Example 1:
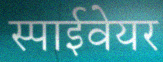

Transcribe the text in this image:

स्पाईवेयर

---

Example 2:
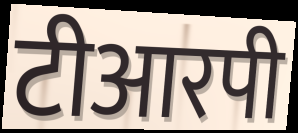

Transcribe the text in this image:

टीआरपी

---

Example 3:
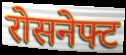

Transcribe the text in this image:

रोसनेफ्ट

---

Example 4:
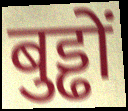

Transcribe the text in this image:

बुड्ढों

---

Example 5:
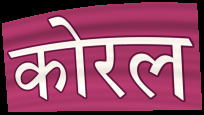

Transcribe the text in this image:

कोरल